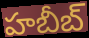
హబీబ్